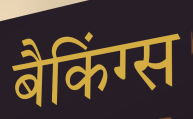
बैकिंग्स